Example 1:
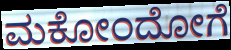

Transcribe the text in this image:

ಮಕೋಂದೋಗೆ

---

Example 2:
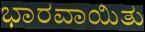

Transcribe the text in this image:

ಭಾರವಾಯಿತು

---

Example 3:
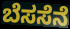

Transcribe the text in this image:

ಬೆಸಸೆನೆ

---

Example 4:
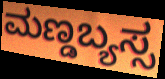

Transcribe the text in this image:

ಮಣ್ಡಬ್ಯಸ್ಸ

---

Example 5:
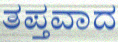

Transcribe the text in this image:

ತಪ್ತವಾದ